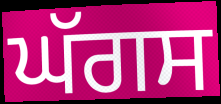
ਘੱਗਸ